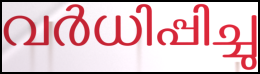
വർധിപ്പിച്ചു